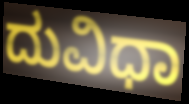
ದುವಿಧಾ